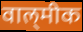
वाल्मीक